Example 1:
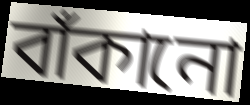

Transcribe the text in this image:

বাঁকানো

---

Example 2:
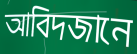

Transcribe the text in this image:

আবিদজানে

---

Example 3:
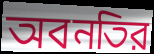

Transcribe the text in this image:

অবনতির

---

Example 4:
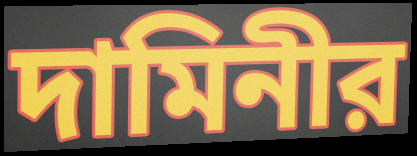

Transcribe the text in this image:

দামিনীর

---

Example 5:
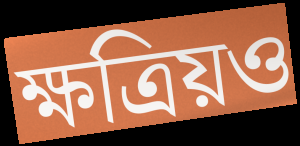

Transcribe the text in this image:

ক্ষত্রিয়ও